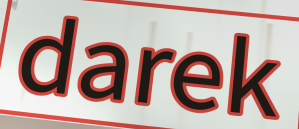
darek